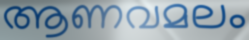
ആണവമലം